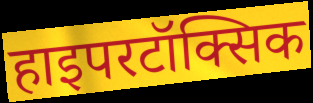
हाइपरटॉक्सिक